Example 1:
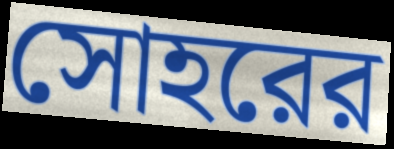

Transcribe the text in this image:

সোহরের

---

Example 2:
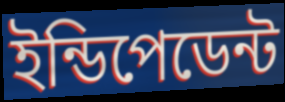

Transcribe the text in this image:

ইন্ডিপেডেন্ট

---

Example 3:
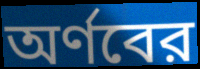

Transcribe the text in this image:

অর্ণবের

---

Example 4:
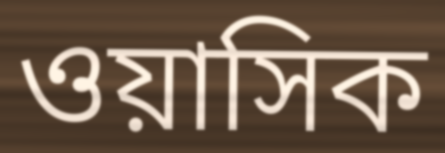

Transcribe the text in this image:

ওয়াসিক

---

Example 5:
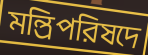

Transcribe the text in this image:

মন্ত্রিপরিষদে